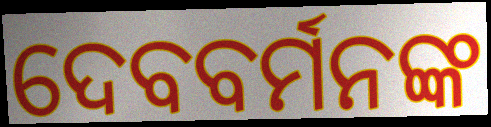
ଦେବବର୍ମନଙ୍କ